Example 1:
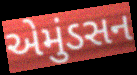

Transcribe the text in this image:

એમુંડસન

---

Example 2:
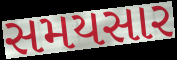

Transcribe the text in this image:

સમયસાર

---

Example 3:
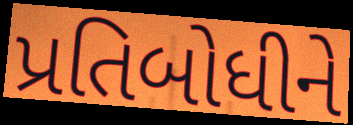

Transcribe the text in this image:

પ્રતિબોધીને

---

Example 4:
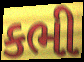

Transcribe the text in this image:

કભી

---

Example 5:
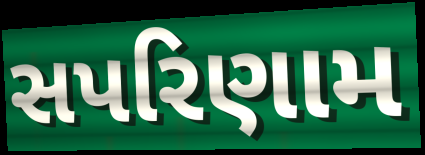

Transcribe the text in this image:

સપરિણામ